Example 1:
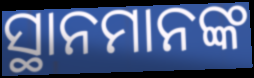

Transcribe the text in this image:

ସ୍ଥାନମାନଙ୍କ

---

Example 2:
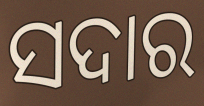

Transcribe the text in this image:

ସଦାର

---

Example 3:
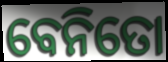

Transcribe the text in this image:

ବେନିତୋ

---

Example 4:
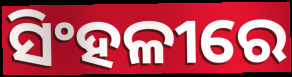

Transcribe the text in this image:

ସିଂହଳୀରେ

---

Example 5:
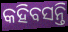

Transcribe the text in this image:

କହିବସନ୍ତି